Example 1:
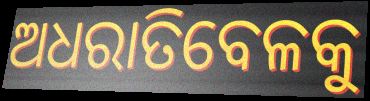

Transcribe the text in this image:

ଅଧରାତିବେଳକୁ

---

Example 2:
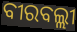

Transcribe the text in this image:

ବୀରବଲ୍ଲୀ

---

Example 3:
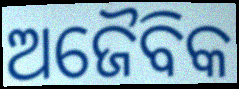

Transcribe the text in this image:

ଅଜୈବିକ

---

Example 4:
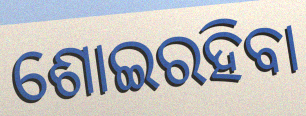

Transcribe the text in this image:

ଶୋଇରହିବା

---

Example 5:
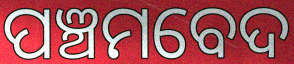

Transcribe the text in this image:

ପଞ୍ଚମବେଦ